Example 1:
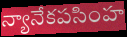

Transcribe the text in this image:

న్యానేకపసింహ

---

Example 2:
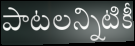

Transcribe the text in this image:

పాటలన్నిటికీ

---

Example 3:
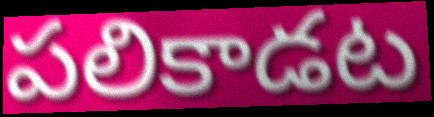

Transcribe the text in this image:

పలికాడట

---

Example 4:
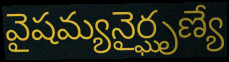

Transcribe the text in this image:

వైషమ్యనైర్ఘృణ్యే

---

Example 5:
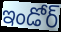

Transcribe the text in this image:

ఇండోర్